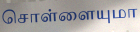
சொள்ளையுமா